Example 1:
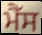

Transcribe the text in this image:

ਮੈੱਸ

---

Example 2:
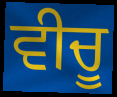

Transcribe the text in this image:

ਵੀਚੂ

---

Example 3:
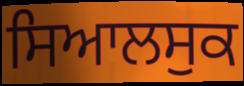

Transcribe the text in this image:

ਸਿਆਲਸੁਕ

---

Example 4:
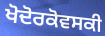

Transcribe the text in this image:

ਖੋਦੋਰਕੋਵਸਕੀ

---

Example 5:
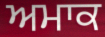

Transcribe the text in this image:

ਅਮਾਕ